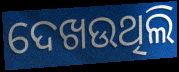
ଦେଖଉଥିଲି